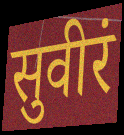
सुवीरं